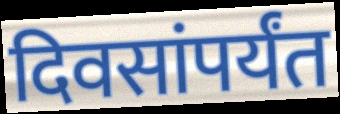
दिवसांपर्यंत